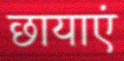
छायाएं